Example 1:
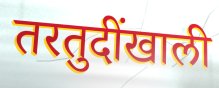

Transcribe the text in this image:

तरतुदींखाली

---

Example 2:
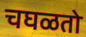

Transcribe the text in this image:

चघळतो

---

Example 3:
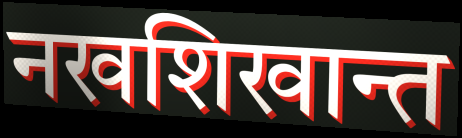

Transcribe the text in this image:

नखशिखान्त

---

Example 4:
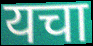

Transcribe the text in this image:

यचा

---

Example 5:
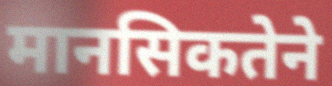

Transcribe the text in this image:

मानसिकतेने